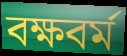
বক্ষবর্ম